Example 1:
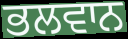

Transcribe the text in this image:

ਭਲਵਾਨ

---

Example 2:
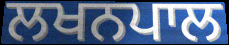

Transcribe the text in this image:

ਲਖਨਪਾਲ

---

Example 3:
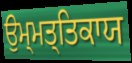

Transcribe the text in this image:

ਉਮ੍ਮਤ੍ਤਿਕਾਯ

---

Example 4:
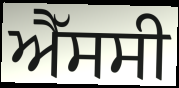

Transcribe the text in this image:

ਐੱਸਸੀ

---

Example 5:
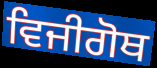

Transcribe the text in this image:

ਵਿਜੀਗੋਥ